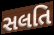
સલતિ